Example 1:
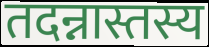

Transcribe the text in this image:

तदन्नास्तस्य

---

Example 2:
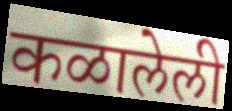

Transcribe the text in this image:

कळालेली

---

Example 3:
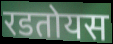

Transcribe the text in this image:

रडतोयस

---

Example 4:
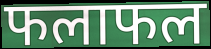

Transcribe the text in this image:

फलाफल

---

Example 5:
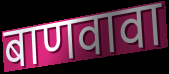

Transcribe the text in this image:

बाणवावा